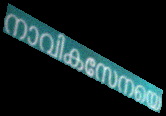
നാവികസേനയെ